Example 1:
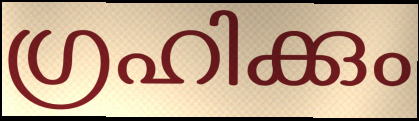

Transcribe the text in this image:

ഗ്രഹിക്കും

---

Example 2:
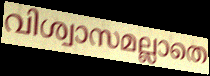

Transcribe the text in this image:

വിശ്വാസമല്ലാതെ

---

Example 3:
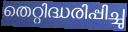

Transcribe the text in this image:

തെറ്റിദ്ധരിപ്പിച്ചു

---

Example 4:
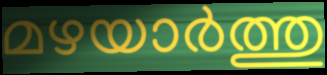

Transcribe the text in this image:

മഴയാർത്തു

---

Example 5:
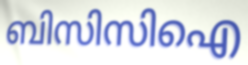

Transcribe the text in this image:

ബിസിസിഐ